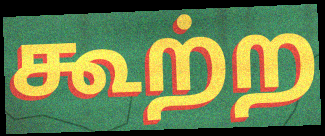
கூற்ற